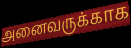
அனைவருக்காக